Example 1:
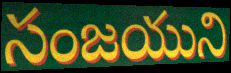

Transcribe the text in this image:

సంజయుని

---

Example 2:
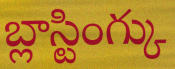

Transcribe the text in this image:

బ్లాస్టింగ్కు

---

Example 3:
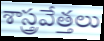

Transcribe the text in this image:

శాస్త్రవేత్తలు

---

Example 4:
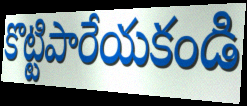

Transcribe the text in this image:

కొట్టిపారేయకండి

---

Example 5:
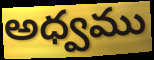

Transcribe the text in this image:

అధ్వము